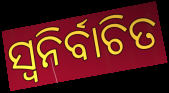
ସ୍ବନିର୍ବାଚିତ